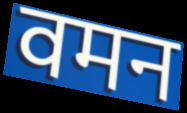
वमन